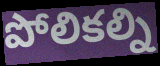
పోలికల్ని